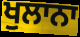
ਖੁਲਾਨਾ